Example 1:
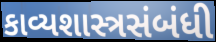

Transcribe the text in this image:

કાવ્યશાસ્ત્રસંબંધી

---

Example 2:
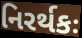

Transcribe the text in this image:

નિરર્થકઃ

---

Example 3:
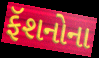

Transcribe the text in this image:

ફૅશનોના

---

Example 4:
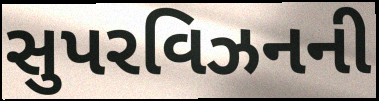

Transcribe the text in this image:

સુપરવિઝનની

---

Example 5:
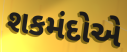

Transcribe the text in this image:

શકમંદોએ